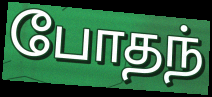
போதந்